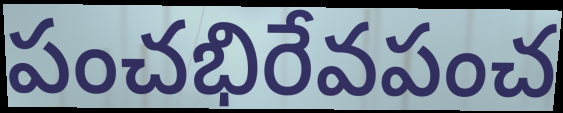
పంచభిరేవపంచ